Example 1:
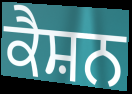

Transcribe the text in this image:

ਕੈਸ਼ਨ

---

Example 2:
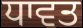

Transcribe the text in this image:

ਧਾਵਤ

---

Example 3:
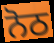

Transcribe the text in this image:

ਨੋਠ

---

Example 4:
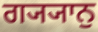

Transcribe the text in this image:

ਗ੍ਯ੍ਯਾਨੁ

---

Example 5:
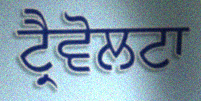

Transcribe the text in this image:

ਟ੍ਰੈਵੋਲਟਾ